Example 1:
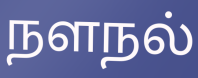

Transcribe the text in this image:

நளநல்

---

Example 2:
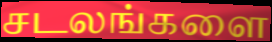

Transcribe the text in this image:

சடலங்களை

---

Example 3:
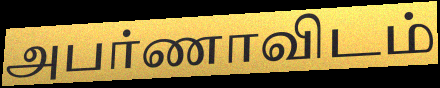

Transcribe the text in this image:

அபர்ணாவிடம்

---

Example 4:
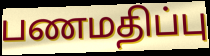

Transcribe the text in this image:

பணமதிப்பு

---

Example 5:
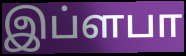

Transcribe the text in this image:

இப்ளபா